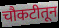
चौकटीतून